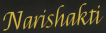
Narishakti